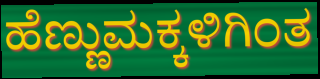
ಹೆಣ್ಣುಮಕ್ಕಳಿಗಿಂತ